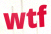
wtf